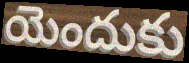
యెందుకు